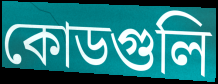
কোডগুলি